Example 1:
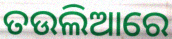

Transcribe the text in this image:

ତଉଲିଆରେ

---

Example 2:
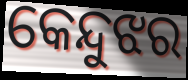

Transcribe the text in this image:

କେନ୍ଦୁଝର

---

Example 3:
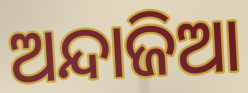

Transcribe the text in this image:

ଅନ୍ଦାଜିଆ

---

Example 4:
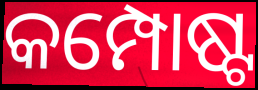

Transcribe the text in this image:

କମ୍ପୋଷ୍ଟ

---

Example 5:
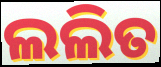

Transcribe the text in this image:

ଲଲିତ